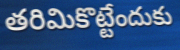
తరిమికొట్టేందుకు